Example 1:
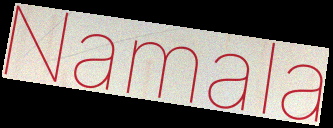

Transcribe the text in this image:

Namala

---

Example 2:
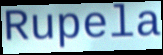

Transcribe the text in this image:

Rupela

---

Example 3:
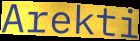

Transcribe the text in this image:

Arekti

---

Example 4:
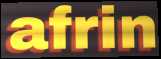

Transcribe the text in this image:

afrin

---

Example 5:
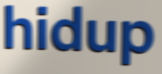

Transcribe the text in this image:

hidup